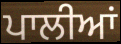
ਪਾਲੀਆਂ